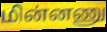
மின்னணு